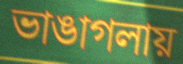
ভাঙাগলায়